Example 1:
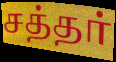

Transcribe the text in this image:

சத்தர்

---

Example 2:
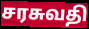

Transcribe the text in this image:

சரசுவதி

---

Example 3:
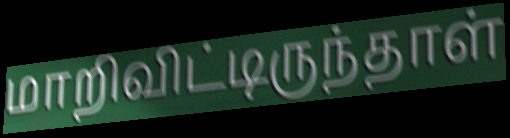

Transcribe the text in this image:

மாறிவிட்டிருந்தாள்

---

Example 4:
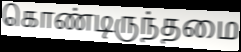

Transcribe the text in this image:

கொண்டிருந்தமை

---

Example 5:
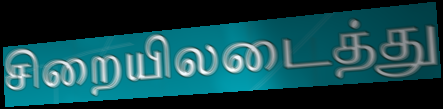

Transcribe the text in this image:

சிறையிலடைத்து